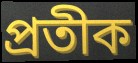
প্ৰতীক